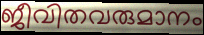
ജീവിതവരുമാനം